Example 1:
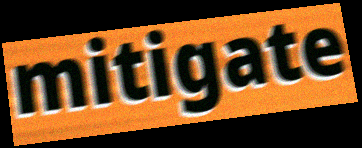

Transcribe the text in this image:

mitigate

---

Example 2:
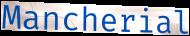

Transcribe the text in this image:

Mancherial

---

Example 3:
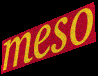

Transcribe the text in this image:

meso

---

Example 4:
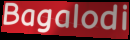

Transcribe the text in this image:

Bagalodi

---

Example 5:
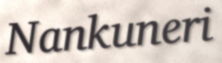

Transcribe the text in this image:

Nankuneri